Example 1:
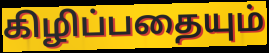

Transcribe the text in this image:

கிழிப்பதையும்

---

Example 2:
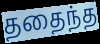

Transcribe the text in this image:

ததைந்த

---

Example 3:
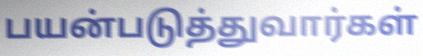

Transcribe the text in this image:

பயன்படுத்துவார்கள்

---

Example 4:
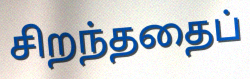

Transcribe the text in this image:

சிறந்ததைப்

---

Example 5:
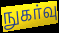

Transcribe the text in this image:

நுகர்வு